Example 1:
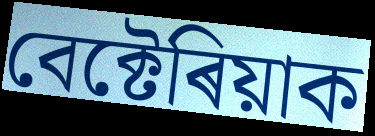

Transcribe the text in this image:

বেক্টেৰিয়াক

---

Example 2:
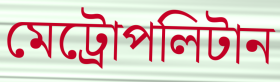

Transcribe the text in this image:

মেট্ৰোপলিটান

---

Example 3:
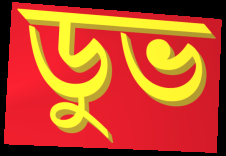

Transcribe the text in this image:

ডুভ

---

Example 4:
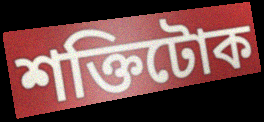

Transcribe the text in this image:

শক্তিটোক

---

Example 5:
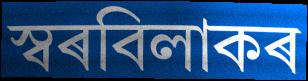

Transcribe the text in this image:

স্বৰবিলাকৰ